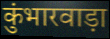
कुंभारवाड़ा